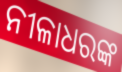
ନୀଳାଧରଙ୍କ